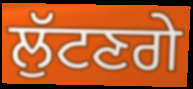
ਲੁੱਟਣਗੇ